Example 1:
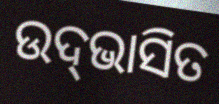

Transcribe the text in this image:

ଉଦ୍‍ଭାସିତ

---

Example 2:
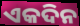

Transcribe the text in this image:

ଏକଦିନ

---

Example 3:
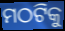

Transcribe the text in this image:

ମଠଟିକୁ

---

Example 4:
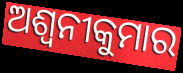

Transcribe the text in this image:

ଅଶ୍ୱନୀକୁମାର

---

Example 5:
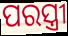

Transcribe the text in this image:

ପରସ୍ତ୍ରୀ